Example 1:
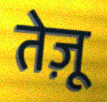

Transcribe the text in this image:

तेज़ू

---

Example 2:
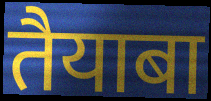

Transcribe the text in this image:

तैयाबा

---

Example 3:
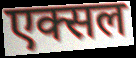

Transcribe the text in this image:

एक्सल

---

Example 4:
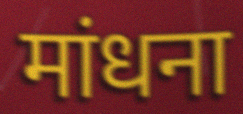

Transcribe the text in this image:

मांधना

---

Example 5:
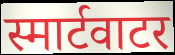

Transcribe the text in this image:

स्मार्टवाटर